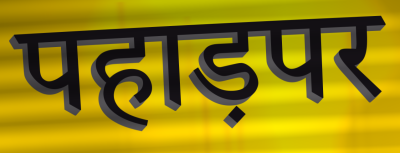
पहाड़पर